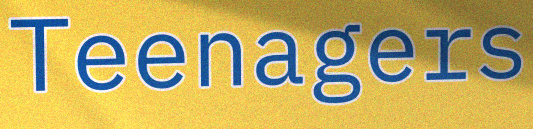
Teenagers